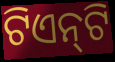
ଟିଏନ୍‌ଟି